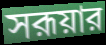
সরূয়ার